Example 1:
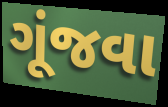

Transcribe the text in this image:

ગૂંજવા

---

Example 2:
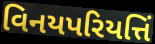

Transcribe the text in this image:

વિનયપરિયત્તિં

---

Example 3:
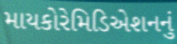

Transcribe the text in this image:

માયકોરેમિડિએશનનું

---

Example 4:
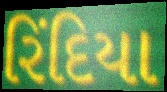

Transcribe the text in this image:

રિંદિયા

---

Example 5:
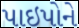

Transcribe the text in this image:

પાઇપોને